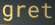
gret